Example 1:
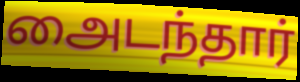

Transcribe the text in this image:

அைடந்தார்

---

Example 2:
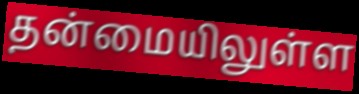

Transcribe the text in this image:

தன்மையிலுள்ள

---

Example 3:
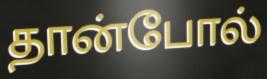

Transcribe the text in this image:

தான்போல்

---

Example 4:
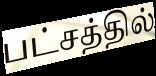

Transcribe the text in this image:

பட்சத்தில்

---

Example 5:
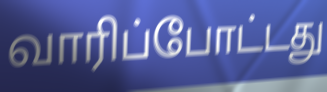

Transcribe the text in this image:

வாரிப்போட்டது